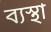
ব্যস্থা